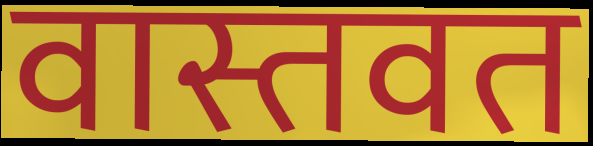
वास्‍तवत